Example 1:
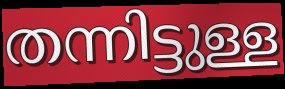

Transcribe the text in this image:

തന്നിട്ടുള്ള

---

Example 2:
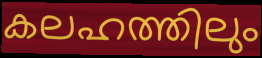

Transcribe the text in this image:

കലഹത്തിലും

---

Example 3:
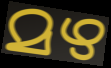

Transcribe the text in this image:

മഴ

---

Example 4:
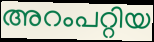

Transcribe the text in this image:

അറംപറ്റിയ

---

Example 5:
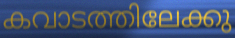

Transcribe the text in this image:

കവാടത്തിലേക്കു